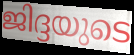
ജിദ്ദയുടെ